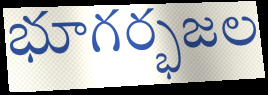
భూగర్భజల